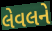
લેવલને